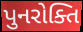
પુનરોક્તિ